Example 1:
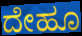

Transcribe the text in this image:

ದೇಹೂ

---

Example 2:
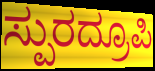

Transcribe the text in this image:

ಸ್ಪುರದ್ರೂಪಿ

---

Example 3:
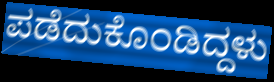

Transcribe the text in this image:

ಪಡೆದುಕೊಂಡಿದ್ದಳು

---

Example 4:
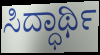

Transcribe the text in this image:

ಸಿದ್ಧಾರ್ಥಿ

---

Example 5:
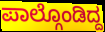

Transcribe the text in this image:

ಪಾಲ್ಗೊಂಡಿದ್ದ